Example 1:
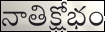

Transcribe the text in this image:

నాతిక్షోభం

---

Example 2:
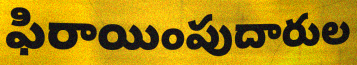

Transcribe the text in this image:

ఫిరాయింపుదారుల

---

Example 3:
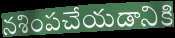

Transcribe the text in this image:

నశింపచేయడానికి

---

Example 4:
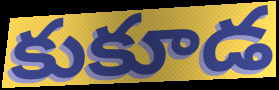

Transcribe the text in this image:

కుకూడ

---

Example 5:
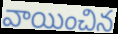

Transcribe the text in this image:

వాయించిన